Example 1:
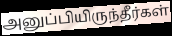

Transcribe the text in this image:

அனுப்பியிருந்தீர்கள்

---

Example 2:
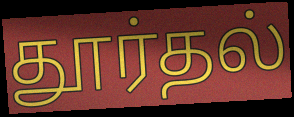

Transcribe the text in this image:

தூர்தல்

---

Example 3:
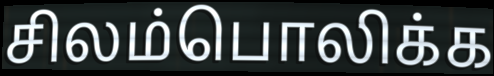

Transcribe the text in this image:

சிலம்பொலிக்க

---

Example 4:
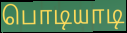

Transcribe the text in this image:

பொடியாடி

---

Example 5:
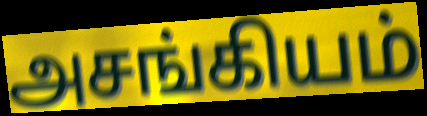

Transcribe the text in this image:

அசங்கியம்